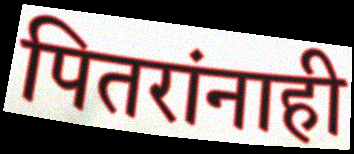
पितरांनाही